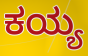
ಕಯ್ಯ